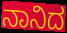
ನಾನಿದ